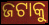
ଜଟାକୁ